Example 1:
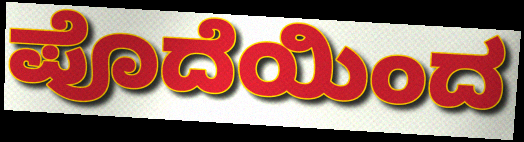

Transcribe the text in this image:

ಪೊದೆಯಿಂದ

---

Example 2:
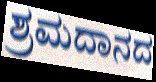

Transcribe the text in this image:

ಶ್ರಮದಾನದ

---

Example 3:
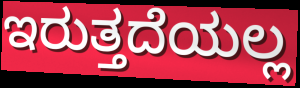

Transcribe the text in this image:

ಇರುತ್ತದೆಯಲ್ಲ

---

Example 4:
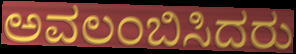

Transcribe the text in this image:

ಅವಲಂಬಿಸಿದರು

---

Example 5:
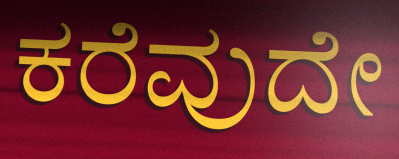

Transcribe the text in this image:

ಕರೆವುದೇ